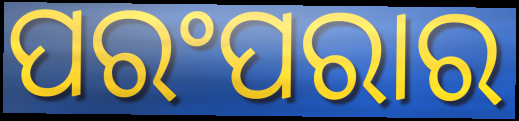
ପରଂପରାର